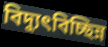
বিদ্যুৎবিচ্ছিন্ন